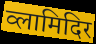
व्लामिदिर